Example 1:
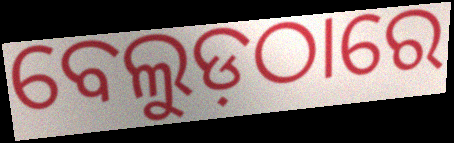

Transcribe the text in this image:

ବେଲୁଡ଼ଠାରେ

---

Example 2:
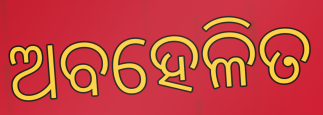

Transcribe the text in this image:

ଅବହେଳିତ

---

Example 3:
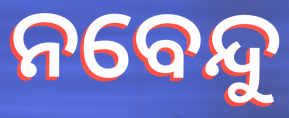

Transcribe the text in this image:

ନବେନ୍ଦୁ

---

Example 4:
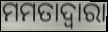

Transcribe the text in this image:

ମମତାଦ୍ୱାରା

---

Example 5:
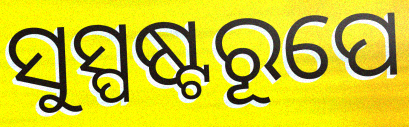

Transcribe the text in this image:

ସୁସ୍ପଷ୍ଟରୂପେ